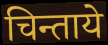
चिन्ताये